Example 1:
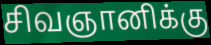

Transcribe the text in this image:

சிவஞானிக்கு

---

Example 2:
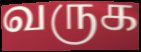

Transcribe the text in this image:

வருக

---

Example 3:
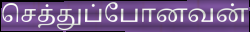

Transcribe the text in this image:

செத்துப்போனவன்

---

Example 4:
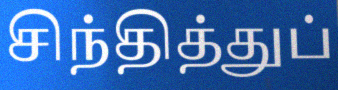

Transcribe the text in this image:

சிந்தித்துப்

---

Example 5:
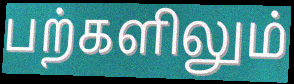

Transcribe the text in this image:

பற்களிலும்